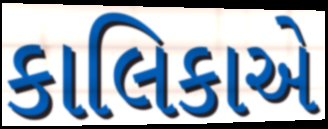
કાલિકાએ